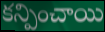
కన్పించాయి